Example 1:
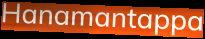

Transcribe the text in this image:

Hanamantappa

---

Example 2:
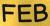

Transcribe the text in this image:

FEB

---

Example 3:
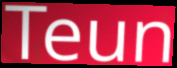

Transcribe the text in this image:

Teun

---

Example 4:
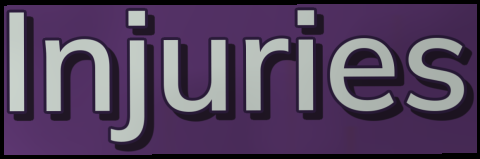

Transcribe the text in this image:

Injuries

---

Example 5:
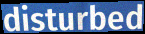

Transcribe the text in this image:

disturbed